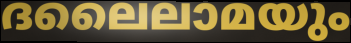
ദലൈലാമയും